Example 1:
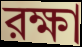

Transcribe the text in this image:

রক্ষা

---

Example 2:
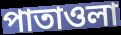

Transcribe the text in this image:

পাতাওলা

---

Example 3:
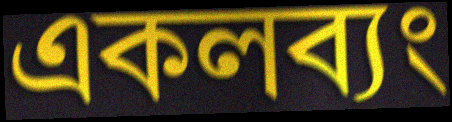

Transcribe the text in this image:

একলব্যং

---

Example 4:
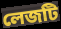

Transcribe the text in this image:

লেজটি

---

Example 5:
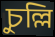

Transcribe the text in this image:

চুল্লি